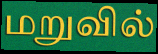
மறுவில்